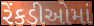
રેંકડીઓમાં